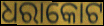
ଧରାକୋଟ